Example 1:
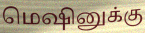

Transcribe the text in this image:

மெஷினுக்கு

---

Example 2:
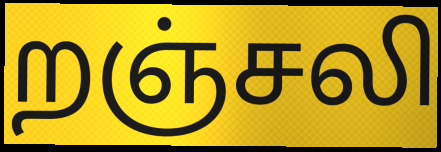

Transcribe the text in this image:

றஞ்சலி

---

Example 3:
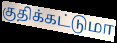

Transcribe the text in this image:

குதிக்கட்டுமா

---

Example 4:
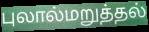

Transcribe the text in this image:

புலால்மறுத்தல்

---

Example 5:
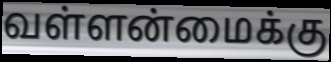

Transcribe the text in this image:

வள்ளன்மைக்கு